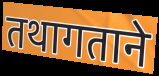
तथागताने